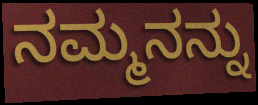
ನಮ್ಮನನ್ನು